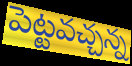
పెట్టవచ్చన్న